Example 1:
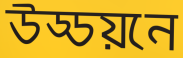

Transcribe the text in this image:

উড্ডয়নে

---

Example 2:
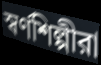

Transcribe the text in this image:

স্বর্ণশিল্পীরা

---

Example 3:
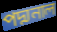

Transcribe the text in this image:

পদ্মনাল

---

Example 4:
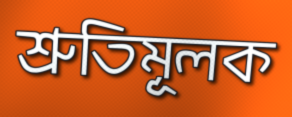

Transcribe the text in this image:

শ্রুতিমূলক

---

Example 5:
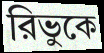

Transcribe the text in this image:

রিভুকে